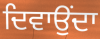
ਦਿਵਾਉਂਦਾ